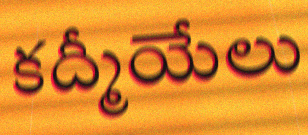
కద్మీయేలు